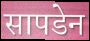
सापडेन